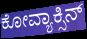
ಕೋವ್ಯಾಕ್ಸಿನ್